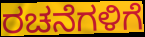
ರಚನೆಗಳಿಗೆ